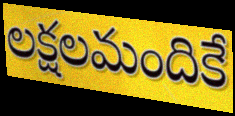
లక్షలమందికే